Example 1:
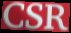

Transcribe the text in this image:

CSR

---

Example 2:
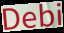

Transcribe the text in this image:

Debi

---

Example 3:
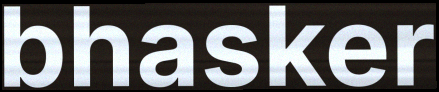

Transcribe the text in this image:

bhasker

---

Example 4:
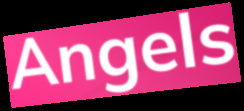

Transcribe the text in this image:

Angels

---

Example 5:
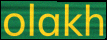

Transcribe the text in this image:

olakh